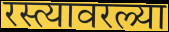
रस्त्यावरल्या